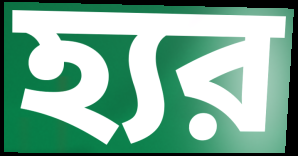
হ্যর